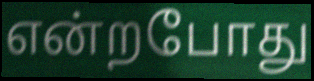
என்றபோது